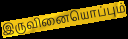
இருவினையொப்பும்